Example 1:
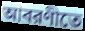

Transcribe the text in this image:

আবরণীতে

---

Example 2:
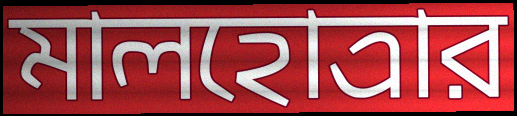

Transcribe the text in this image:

মালহোত্রার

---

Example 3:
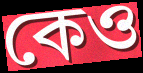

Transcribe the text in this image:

কেও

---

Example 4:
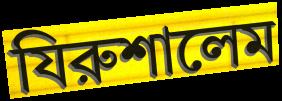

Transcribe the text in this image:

যিরুশালেম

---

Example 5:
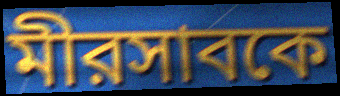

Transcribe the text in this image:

মীরসাবকে